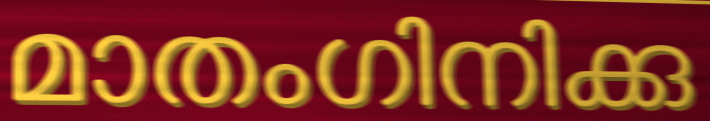
മാതംഗിനിക്കു